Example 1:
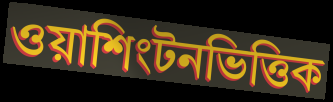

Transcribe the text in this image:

ওয়াশিংটনভিত্তিক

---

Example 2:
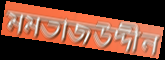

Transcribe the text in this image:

মমতাজউদ্দীন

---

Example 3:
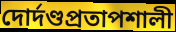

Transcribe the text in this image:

দোর্দণ্ডপ্রতাপশালী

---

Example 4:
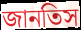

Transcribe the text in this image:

জানতিস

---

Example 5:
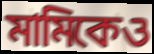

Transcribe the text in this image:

মামিকেও